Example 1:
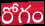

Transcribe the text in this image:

రోగం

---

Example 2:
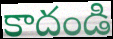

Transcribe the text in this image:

కాదండి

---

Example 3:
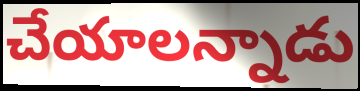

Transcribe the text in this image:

చేయాలన్నాడు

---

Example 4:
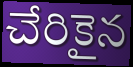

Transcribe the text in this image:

చేరికైన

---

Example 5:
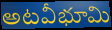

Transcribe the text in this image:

అటవీభూమి